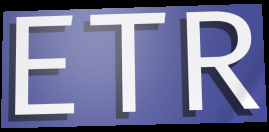
ETR